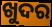
ଖୁଦର